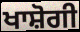
ਖਾਸ਼ੋਗੀ